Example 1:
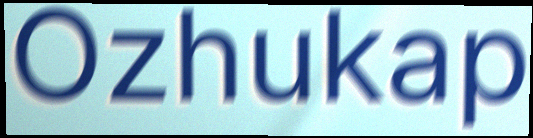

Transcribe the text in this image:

Ozhukap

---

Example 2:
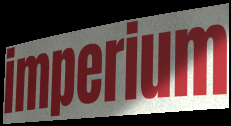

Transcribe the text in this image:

imperium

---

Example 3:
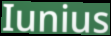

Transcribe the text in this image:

Iunius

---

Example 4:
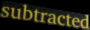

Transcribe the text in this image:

subtracted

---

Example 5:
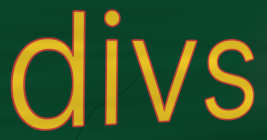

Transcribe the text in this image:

divs